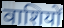
वाशियों